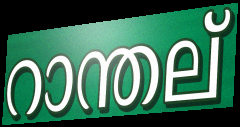
റാന്തല്